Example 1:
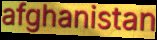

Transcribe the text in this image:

afghanistan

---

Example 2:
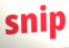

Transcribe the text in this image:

snip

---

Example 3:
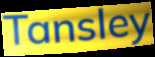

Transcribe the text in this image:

Tansley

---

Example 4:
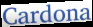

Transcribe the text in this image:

Cardona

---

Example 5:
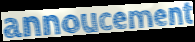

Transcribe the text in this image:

annoucement